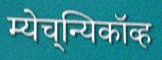
म्येच्‌न्यिकॉव्ह